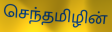
செந்தமிழின்